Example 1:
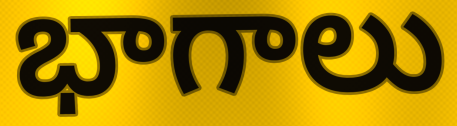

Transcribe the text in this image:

భాగాలు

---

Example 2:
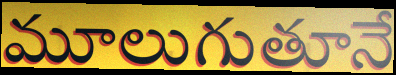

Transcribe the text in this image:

మూలుగుతూనే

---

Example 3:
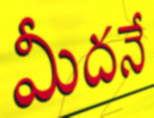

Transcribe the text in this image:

మీదనే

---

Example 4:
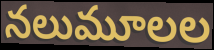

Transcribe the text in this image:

నలుమూలల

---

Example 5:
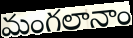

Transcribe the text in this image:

మంగలానాం